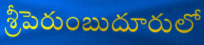
శ్రీపెరుంబుదూరులో